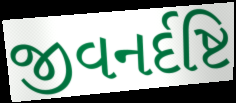
જીવનર્દષ્ટિ